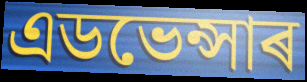
এডভেন্সাৰ